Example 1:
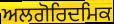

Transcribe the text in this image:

ਅਲਗੋਰਿਦਮਿਕ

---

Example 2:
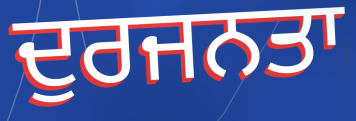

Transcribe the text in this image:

ਦੁਰਜਨਤਾ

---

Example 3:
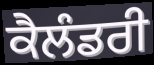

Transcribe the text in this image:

ਕੈਲੰਡਰੀ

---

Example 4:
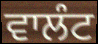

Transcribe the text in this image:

ਵਾਲੰਟ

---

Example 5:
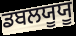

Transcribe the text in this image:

ਡਬਲਯੂਯੂ